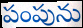
పంపును